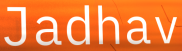
Jadhav